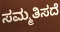
ಸಮ್ಮತಿಸದೆ